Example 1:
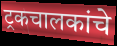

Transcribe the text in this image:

ट्रकचालकांचे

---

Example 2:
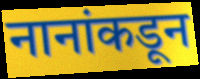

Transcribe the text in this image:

नानांकडून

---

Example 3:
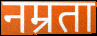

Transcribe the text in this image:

नम्रता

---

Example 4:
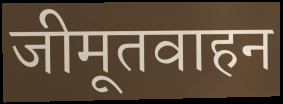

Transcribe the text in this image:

जीमूतवाहन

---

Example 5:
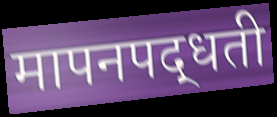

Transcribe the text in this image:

मापनपद्धती